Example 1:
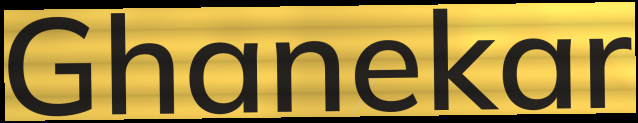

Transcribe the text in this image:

Ghanekar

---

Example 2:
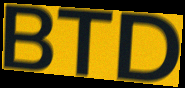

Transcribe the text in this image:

BTD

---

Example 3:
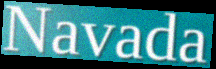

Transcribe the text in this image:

Navada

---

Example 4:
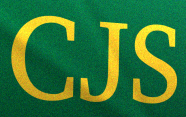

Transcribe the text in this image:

CJS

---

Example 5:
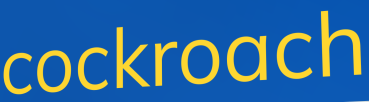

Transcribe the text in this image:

cockroach